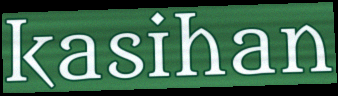
kasihan